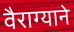
वैराग्याने